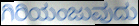
ಗಿರಿಯಂಜುವುದು